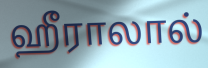
ஹீராலால்